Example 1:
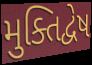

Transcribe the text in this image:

મુક્તિદ્વેષ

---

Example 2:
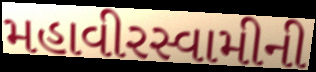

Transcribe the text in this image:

મહાવીરસ્વામીની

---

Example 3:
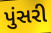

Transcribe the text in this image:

પુંસરી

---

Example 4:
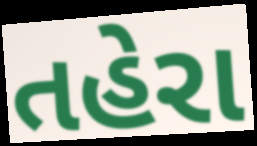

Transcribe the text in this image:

તહેરા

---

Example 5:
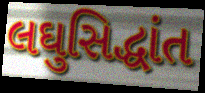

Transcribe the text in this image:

લઘુસિદ્ધાંત